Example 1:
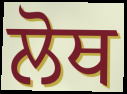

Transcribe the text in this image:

ਲੋਥ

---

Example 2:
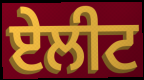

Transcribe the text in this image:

ਏਲੀਟ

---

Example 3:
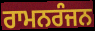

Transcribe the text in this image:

ਰਾਮਨਰੰਜਨ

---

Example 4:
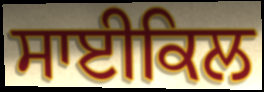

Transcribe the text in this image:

ਸਾਈਕਿਲ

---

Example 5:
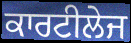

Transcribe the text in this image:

ਕਾਰਟੀਲੇਜ